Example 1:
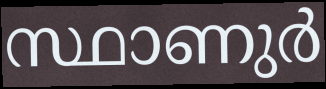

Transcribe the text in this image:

സ്ഥാണുർ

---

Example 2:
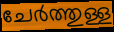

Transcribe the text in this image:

ചേർത്തുള്ള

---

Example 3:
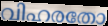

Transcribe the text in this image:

വിഹരതോ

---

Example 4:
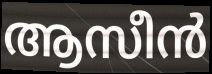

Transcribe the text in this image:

ആസീൻ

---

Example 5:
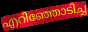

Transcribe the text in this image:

എറിഞ്ഞോടിച്ച